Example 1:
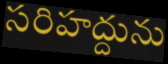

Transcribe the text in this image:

సరిహద్దును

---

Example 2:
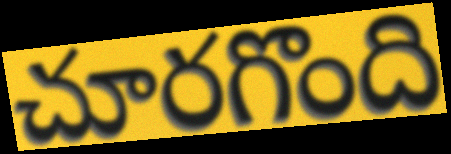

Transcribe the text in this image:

చూరగొంది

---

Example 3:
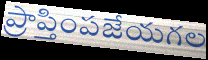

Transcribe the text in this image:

ప్రాప్తింపజేయగల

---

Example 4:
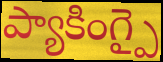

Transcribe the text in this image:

ప్యాకింగ్పై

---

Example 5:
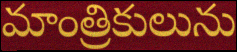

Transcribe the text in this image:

మాంత్రికులును